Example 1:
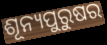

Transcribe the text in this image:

ଶୂନ୍ୟପୁରୁଷର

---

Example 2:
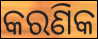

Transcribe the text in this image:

କରଣିକ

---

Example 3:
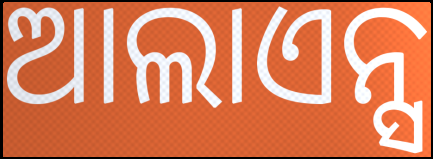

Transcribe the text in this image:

ଆଲାଏନ୍ସ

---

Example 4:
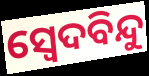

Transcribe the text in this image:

ସ୍ୱେଦବିନ୍ଦୁ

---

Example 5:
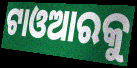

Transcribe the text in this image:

ଟାଓଆରକୁ